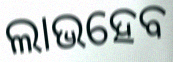
ଲାଭହେବ